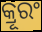
କ୍ରୂରଂ